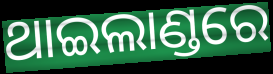
ଥାଇଲାଣ୍ଡରେ